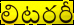
లిటరరీ